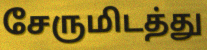
சேருமிடத்து